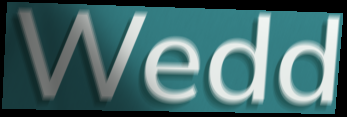
Wedd